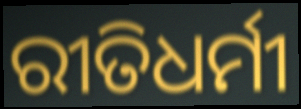
ରୀତିଧର୍ମୀ